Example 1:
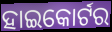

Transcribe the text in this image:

ହାଇକୋର୍ଟର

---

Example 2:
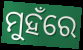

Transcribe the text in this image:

ମୁହଁରେ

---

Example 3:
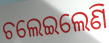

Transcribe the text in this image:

ଚଲେଇଲେଣି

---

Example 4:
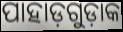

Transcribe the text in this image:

ପାହାଡ଼ଗୁଡ଼ାକ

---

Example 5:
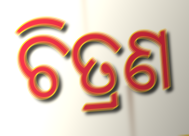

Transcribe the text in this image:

ଚିତ୍ରଣ